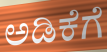
ಅಡಿಕೆಗೆ